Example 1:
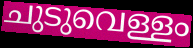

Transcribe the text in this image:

ചുടുവെള്ളം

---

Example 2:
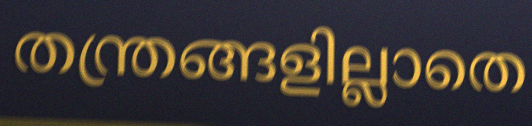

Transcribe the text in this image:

തന്ത്രങ്ങളില്ലാതെ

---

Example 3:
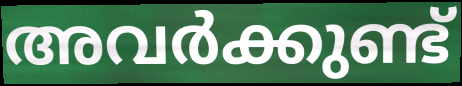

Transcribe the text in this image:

അവർക്കുണ്ട്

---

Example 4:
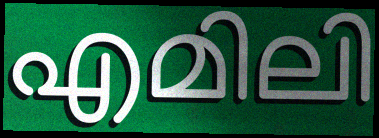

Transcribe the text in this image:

എമിലി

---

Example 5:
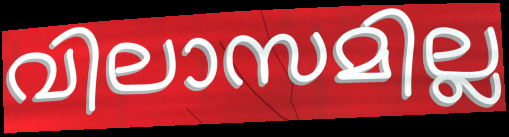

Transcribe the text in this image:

വിലാസമില്ല